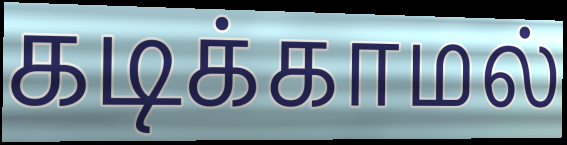
கடிக்காமல்